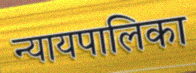
न्यायपालिका